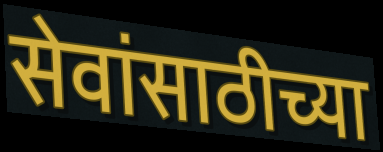
सेवांसाठीच्या